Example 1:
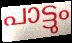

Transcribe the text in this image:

പാട്ടും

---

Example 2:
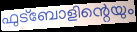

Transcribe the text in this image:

ഫുട്ബോളിന്റെയും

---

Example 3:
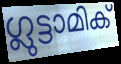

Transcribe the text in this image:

ഗ്ലുട്ടാമിക്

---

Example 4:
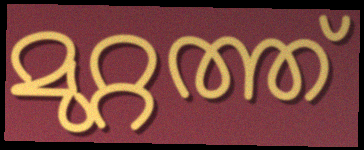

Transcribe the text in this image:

മുറ്റത്ത്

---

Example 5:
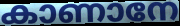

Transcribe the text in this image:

കാണാനേ